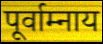
पूर्वाम्नाय